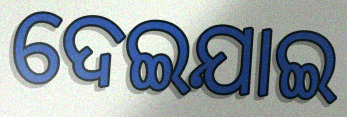
ଦେଇଯାଇ